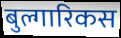
बुल्गारिकस